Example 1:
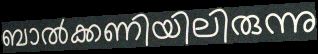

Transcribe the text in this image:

ബാൽക്കണിയിലിരുന്നു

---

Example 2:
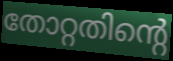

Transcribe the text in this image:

തോറ്റതിന്റെ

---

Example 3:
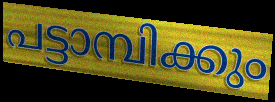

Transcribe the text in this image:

പട്ടാമ്പിക്കും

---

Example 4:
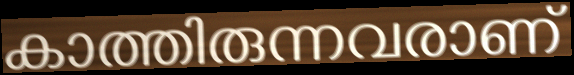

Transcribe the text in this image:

കാത്തിരുന്നവരാണ്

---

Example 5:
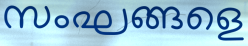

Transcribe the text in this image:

സംഘങ്ങളെ